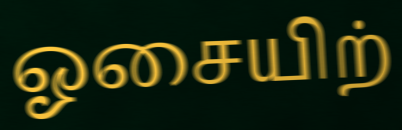
ஓசையிற்